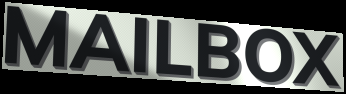
MAILBOX